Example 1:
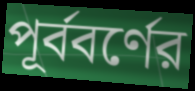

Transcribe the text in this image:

পূর্ববর্ণের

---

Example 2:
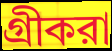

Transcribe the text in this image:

গ্রীকরা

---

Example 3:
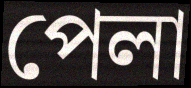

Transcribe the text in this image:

পেলা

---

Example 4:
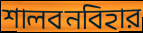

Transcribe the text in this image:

শালবনবিহার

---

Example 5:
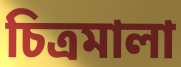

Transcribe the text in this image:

চিত্রমালা